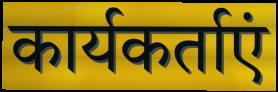
कार्यकर्ताएं